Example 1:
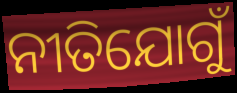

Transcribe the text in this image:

ନୀତିଯୋଗୁଁ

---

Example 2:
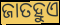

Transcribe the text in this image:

ଜାତହୁଏ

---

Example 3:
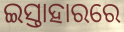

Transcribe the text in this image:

ଇସ୍ତାହାରରେ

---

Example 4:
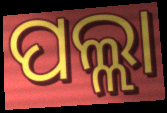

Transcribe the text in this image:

ପଲ୍ଲା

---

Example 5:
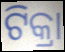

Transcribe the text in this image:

ଟିକ୍ରା